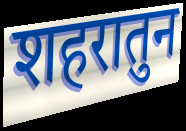
शहरातुन